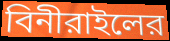
বিনীরাইলের